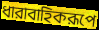
ধারাবাহিকরূপে